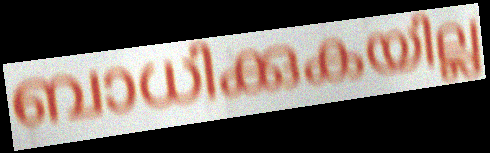
ബാധിക്കുകയില്ല